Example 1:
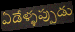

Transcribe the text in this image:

ఏడేళ్ళప్పుడు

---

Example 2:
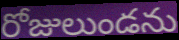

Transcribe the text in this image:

రోజులుండను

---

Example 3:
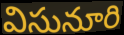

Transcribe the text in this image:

విసునూరి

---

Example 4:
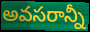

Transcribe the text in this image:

అవసరాన్నీ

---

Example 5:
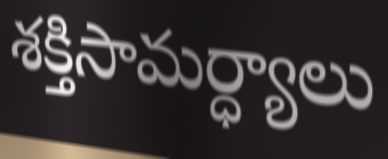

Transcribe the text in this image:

శక్తిసామర్ధ్యాలు